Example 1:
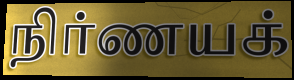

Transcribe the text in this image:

நிர்ணயக்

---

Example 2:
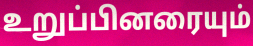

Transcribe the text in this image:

உறுப்பினரையும்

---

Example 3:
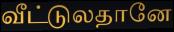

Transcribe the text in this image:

வீட்டுலதானே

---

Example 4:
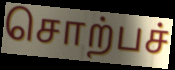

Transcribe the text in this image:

சொற்பச்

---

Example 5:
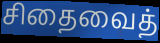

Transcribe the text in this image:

சிதைவைத்